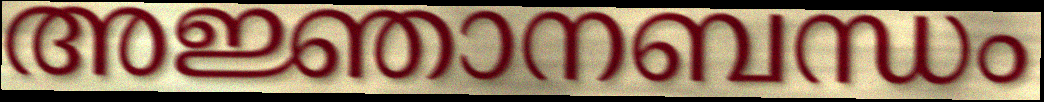
അജ്ഞാനബന്ധം